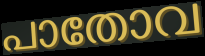
പാതോവ